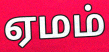
ஏமம்